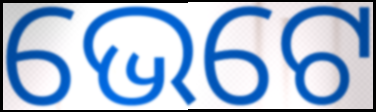
ଭେଟେ